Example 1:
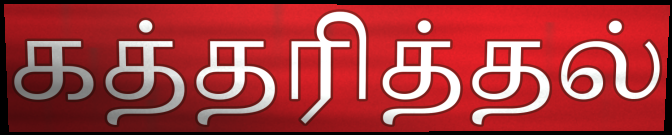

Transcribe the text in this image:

கத்தரித்தல்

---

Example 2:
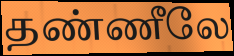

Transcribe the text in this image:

தண்ணீலே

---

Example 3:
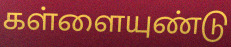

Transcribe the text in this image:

கள்ளையுண்டு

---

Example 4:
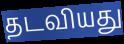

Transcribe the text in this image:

தடவியது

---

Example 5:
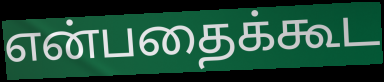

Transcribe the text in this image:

என்பதைக்கூட